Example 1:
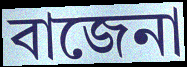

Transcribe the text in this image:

বাজেনা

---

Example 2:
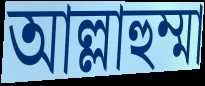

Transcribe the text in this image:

আল্লাহুম্মা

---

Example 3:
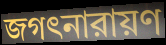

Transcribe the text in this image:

জগৎনারায়ণ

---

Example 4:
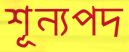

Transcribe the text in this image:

শূন্যপদ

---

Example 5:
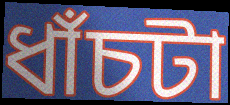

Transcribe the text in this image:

ধাঁচটা